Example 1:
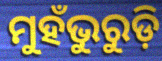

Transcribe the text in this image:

ମୁହଁଭୁରୁଡ଼ି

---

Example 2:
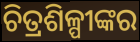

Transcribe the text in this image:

ଚିତ୍ରଶିଳ୍ପୀଙ୍କର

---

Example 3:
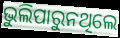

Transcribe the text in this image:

ଭୁଲିପାରୁନଥିଲେ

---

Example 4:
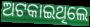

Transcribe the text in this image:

ଅଟକାଇଥିଲେ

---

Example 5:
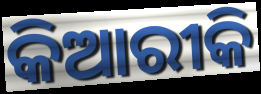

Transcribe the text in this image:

କିଆରୀକି